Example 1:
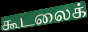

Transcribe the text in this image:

கூடலைக்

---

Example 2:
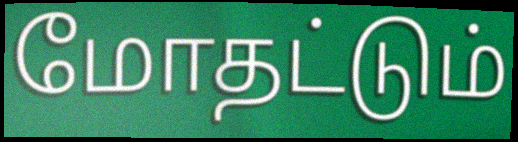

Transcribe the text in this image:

மோதட்டும்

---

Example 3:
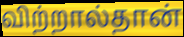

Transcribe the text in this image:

விற்றால்தான்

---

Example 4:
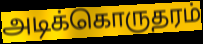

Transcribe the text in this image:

அடிக்கொருதரம்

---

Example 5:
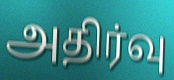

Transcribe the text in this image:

அதிர்வு